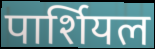
पार्शियल